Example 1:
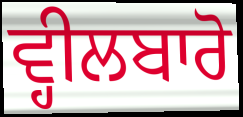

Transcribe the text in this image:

ਵ੍ਹੀਲਬਾਰੋ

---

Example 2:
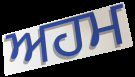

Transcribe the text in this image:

ਅਹਮ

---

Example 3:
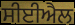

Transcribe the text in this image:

ਸੀਈਐਲ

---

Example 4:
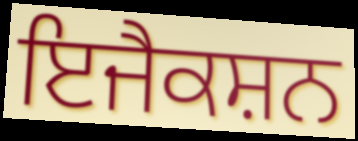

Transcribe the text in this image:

ਇਜੈਕਸ਼ਨ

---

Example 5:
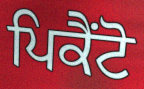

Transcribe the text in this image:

ਪਿਕੈਂਟੋ